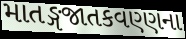
માતઙ્ગજાતકવણ્ણના